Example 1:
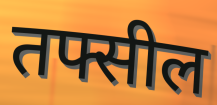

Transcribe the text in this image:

तफ्सील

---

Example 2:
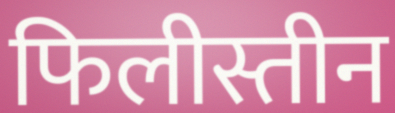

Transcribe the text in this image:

फिलीस्तीन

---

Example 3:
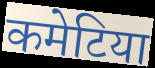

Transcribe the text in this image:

कमेटिया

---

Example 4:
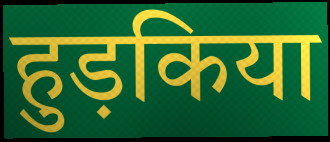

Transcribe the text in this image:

हुड़किया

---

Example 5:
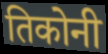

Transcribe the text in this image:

तिकोनी